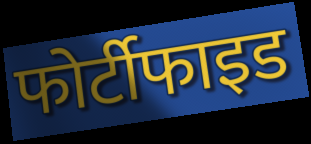
फोर्टीफाइड